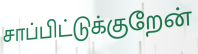
சாப்பிட்டுக்குறேன்